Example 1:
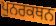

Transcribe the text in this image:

ਪੁਨਰਕਥਨ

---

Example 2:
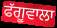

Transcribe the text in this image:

ਫੱਗੂਵਾਲਾ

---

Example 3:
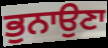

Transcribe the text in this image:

ਭੁਨਾਉਣਾ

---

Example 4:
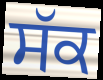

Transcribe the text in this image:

ਸੱਕ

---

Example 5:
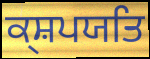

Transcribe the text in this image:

ਕ੍ਸ਼ਪਯਤਿ